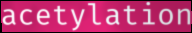
acetylation